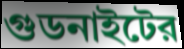
গুডনাইটের